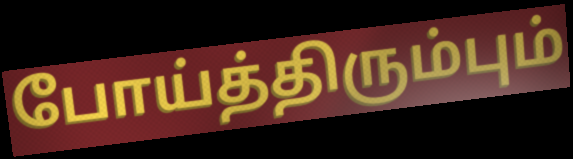
போய்த்திரும்பும்